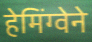
हेमिंग्वेने